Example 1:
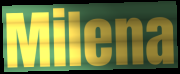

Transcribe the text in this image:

Milena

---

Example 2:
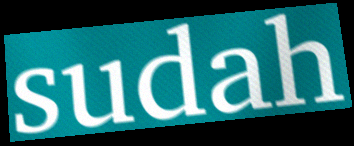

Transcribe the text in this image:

sudah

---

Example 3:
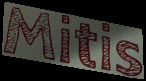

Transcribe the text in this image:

Mitis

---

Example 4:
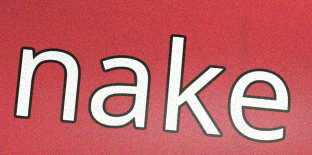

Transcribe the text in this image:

nake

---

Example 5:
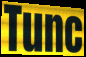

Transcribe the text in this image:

Tunc